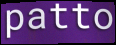
patto